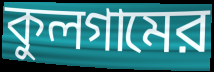
কুলগামের